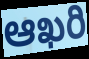
ఆఖరి